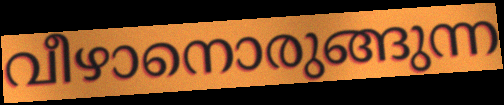
വീഴാനൊരുങ്ങുന്ന